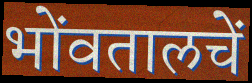
भोंवतालचें